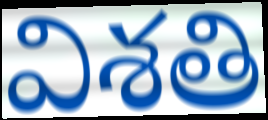
విశతి